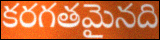
కరగతమైనది